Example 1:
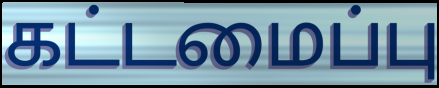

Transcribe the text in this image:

கட்டமைப்பு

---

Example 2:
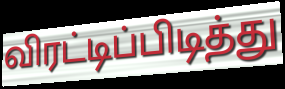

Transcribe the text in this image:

விரட்டிப்பிடித்து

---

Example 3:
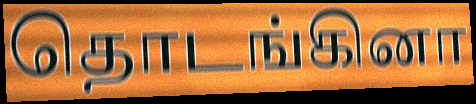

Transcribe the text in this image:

தொடங்கினா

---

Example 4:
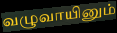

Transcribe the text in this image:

வழுவாயினும்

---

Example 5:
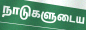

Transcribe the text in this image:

நாடுகளுடைய